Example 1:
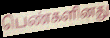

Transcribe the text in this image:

பெண்களினது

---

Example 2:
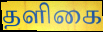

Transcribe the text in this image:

தளிகை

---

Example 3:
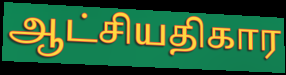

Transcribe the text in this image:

ஆட்சியதிகார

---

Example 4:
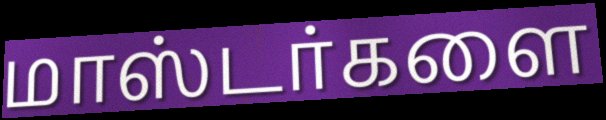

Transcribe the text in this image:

மாஸ்டர்களை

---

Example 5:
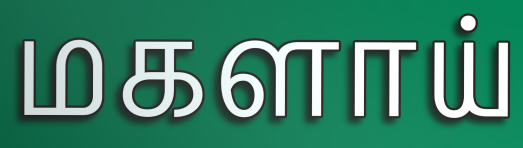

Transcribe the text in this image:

மகளாய்